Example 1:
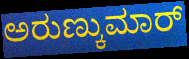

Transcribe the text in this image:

ಅರುಣ್ಕುಮಾರ್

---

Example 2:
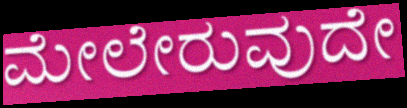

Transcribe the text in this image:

ಮೇಲೇರುವುದೇ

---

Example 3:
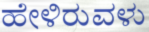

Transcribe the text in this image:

ಹೇಳಿರುವಳು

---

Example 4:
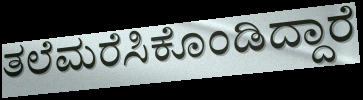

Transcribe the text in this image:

ತಲೆಮರೆಸಿಕೊಂಡಿದ್ದಾರೆ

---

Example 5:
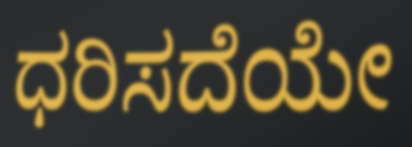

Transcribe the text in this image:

ಧರಿಸದೆಯೇ